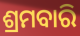
ଶ୍ରମବାରି